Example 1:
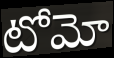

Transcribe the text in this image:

టోమో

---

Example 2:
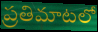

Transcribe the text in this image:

ప్రతిమాటలో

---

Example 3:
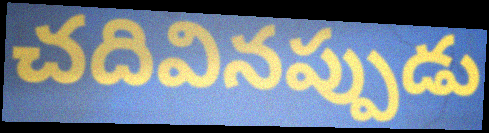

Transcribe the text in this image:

చదివినప్పుడు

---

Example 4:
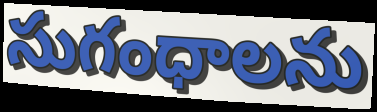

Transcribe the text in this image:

సుగంధాలను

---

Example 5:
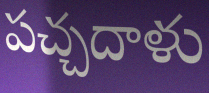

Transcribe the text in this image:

పచ్చదాళు